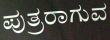
ಪುತ್ರರಾಗುವ